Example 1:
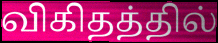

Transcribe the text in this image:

விகிதத்தில்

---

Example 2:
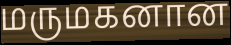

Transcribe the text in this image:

மருமகனான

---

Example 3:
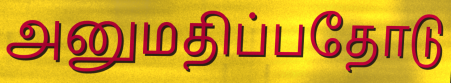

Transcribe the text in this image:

அனுமதிப்பதோடு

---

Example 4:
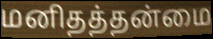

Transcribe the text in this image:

மனிதத்தன்மை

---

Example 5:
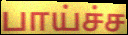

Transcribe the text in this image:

பாய்ச்ச